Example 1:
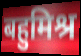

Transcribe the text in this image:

बहुमिश्र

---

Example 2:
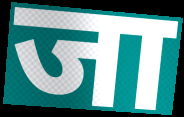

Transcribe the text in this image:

जा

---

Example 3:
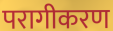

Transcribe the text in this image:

परागीकरण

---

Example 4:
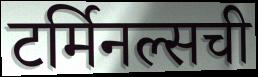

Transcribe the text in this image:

टर्मिनल्सची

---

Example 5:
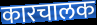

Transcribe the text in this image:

कारचालक